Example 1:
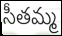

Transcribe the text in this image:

సీతమ్మ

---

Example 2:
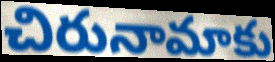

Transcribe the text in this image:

చిరునామాకు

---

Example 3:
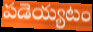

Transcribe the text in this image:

పడెయ్యటం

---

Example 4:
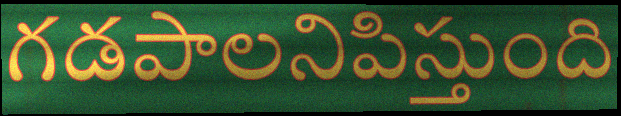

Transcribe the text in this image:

గడపాలనిపిస్తుంది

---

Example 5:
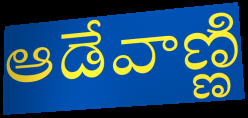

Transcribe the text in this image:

ఆడేవాణ్ణి